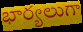
భార్యలుగా